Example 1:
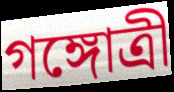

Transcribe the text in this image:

গঙ্গোত্রী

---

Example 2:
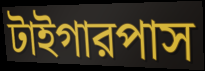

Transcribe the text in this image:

টাইগারপাস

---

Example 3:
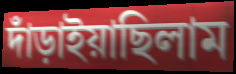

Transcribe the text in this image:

দাঁড়াইয়াছিলাম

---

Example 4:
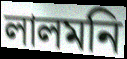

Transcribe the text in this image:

লালমনি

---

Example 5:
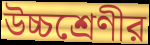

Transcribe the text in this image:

উচ্চশ্রেণীর